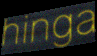
hinga